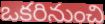
ఒకరినుంచి